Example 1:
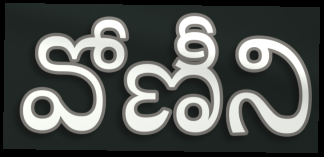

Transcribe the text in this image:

వోణీని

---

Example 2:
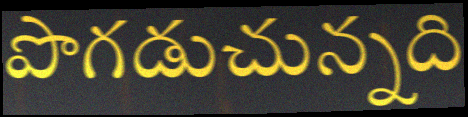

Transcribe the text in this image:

పొగడుచున్నది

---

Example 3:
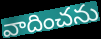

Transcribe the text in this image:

వాదించను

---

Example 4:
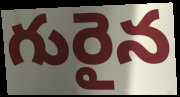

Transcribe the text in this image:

గురైన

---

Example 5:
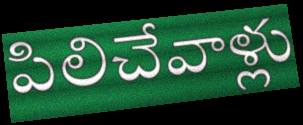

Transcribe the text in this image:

పిలిచేవాళ్లు